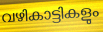
വഴികാട്ടികളും